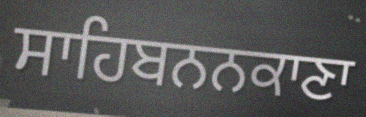
ਸਾਹਿਬਨਨਕਾਣਾ